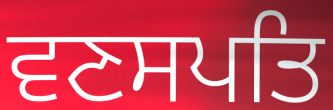
ਵਣਸਪਤਿ